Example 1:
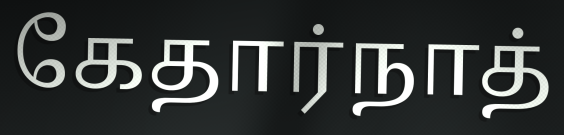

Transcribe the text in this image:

கேதார்நாத்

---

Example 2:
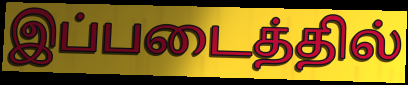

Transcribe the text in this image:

இப்படைத்தில்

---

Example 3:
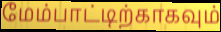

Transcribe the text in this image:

மேம்பாட்டிற்காகவும்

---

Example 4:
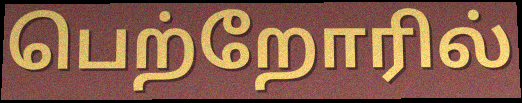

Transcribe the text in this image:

பெற்றோரில்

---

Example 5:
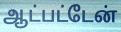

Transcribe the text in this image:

ஆட்பட்டேன்